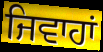
ਜਿਵਾਹਾਂ